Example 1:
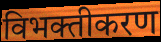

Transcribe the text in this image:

विभक्तीकरण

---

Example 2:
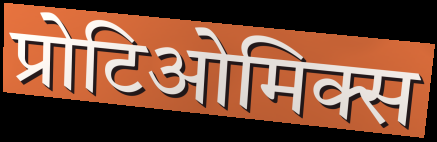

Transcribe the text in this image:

प्रोटिओमिक्स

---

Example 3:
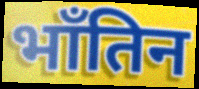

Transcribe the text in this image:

भाँतिन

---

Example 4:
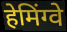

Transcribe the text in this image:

हेमिंग्वे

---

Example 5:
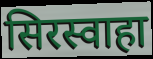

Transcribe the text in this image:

सिरस्वाहा